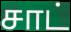
சாட்